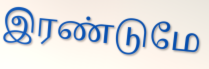
இரண்டுமே